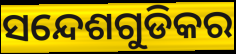
ସନ୍ଦେଶଗୁଡିକର